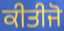
ਕੀਤੀਜੋ